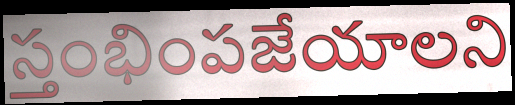
స్తంభింపజేయాలని